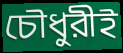
চৌধুরীই